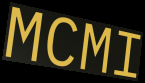
MCMI